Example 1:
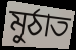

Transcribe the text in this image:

মুঠাত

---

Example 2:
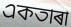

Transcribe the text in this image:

একতাৰা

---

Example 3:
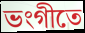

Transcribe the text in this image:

ভংগীতে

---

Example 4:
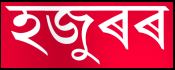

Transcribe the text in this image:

হজুৰৰ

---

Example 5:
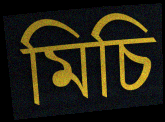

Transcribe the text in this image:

মিচি